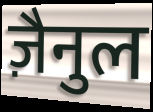
ज़ैनुल